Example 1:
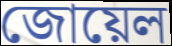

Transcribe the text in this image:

জোয়েল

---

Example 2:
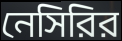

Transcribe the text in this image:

নেসিরির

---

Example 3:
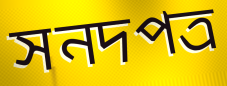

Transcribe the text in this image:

সনদপত্র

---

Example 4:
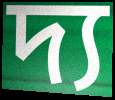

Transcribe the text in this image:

দ্য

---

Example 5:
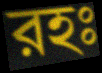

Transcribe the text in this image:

রহঃ